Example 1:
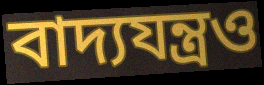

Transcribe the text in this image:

বাদ্যযন্ত্রও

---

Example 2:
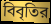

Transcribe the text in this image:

বিবৃতির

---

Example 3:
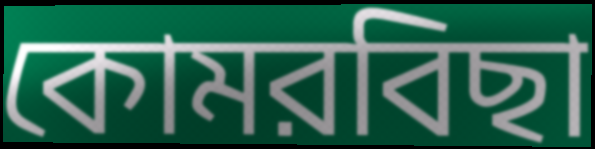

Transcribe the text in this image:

কোমরবিছা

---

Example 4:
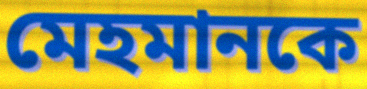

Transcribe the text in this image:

মেহমানকে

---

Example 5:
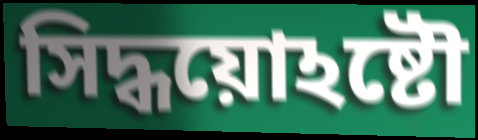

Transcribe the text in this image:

সিদ্ধয়োঽষ্টৌ